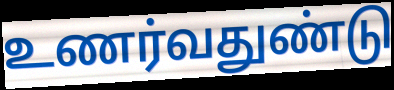
உணர்வதுண்டு